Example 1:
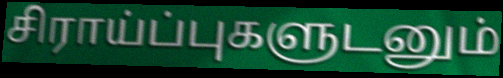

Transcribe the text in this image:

சிராய்ப்புகளுடனும்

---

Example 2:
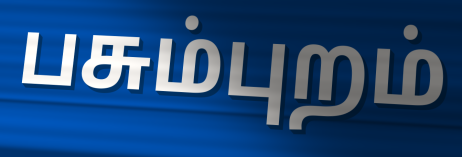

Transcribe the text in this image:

பசும்புறம்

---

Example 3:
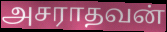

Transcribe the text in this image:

அசராதவன்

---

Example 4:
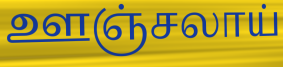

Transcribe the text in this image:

ஊஞ்சலாய்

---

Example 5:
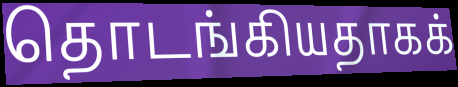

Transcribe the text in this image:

தொடங்கியதாகக்